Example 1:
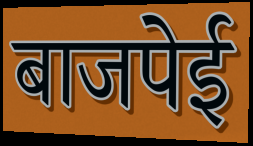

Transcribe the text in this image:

बाजपेई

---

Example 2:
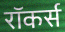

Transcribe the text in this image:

रॉकर्स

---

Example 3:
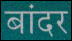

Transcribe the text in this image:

बांदर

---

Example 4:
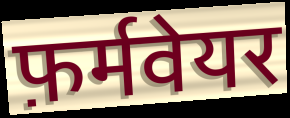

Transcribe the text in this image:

फ़र्मवेयर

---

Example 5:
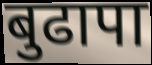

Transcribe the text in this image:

बुढापा